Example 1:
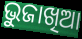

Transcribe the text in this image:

ଭୁଜାଖିଆ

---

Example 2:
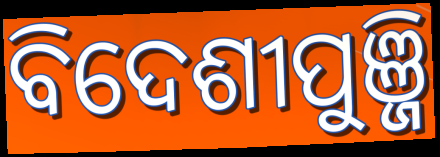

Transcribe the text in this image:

ବିଦେଶୀପୁଞ୍ଜି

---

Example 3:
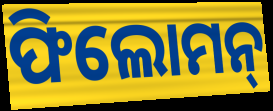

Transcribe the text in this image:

ଫିଲୋମନ୍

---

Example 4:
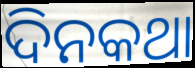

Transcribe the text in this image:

ଦିନକଥା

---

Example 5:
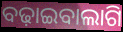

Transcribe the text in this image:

ବଢ଼ାଇବାଲାଗି